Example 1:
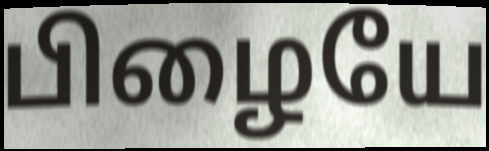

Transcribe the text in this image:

பிழையே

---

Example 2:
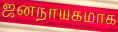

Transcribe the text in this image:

ஜனநாயகமாக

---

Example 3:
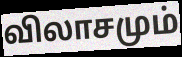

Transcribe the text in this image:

விலாசமும்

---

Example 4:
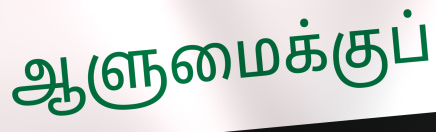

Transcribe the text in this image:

ஆளுமைக்குப்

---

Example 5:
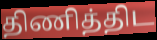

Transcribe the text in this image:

திணித்திட